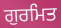
ਗੁਰਮਿਤ